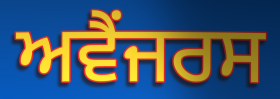
ਅਵੈਂਜਰਸ